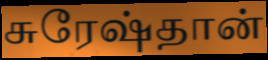
சுரேஷ்தான்